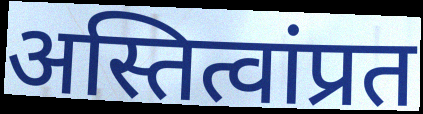
अस्तित्वांप्रत